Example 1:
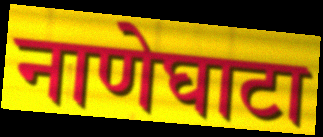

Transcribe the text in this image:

नाणेघाटा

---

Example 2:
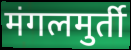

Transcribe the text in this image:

मंगलमुर्ती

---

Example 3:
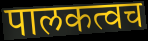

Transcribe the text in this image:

पालकत्वच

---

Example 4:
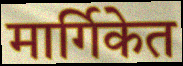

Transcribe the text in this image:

मार्गिकेत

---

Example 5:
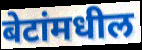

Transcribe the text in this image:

बेटांमधील